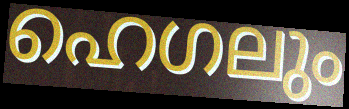
ഹെഗലും